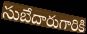
సుబేదారుగారికి